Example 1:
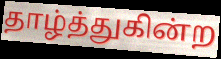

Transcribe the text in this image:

தாழ்த்துகின்ற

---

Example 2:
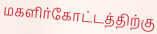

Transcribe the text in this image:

மகளிர்கோட்டத்திற்கு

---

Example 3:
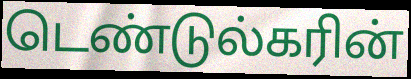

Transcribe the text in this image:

டெண்டுல்கரின்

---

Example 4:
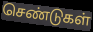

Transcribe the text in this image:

செண்டுகள்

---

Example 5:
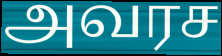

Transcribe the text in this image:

அவரச